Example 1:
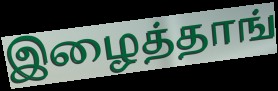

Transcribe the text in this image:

இழைத்தாங்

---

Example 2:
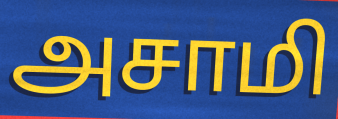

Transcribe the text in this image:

அசாமி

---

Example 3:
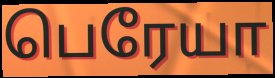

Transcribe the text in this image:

பெரேயா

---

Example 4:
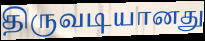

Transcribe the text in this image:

திருவடியானது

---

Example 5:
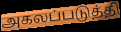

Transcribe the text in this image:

அகலப்படுத்தி